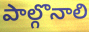
పాల్గొనాలి